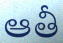
ఆతీ